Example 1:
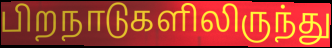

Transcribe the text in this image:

பிறநாடுகளிலிருந்து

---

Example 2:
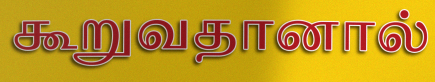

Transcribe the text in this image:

கூறுவதானால்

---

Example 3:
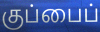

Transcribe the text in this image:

குப்பைப்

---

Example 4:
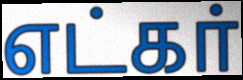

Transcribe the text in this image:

எட்கர்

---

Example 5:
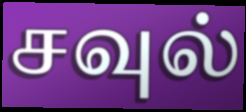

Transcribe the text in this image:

சவுல்